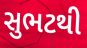
સુભટથી